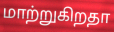
மாற்றுகிறதா